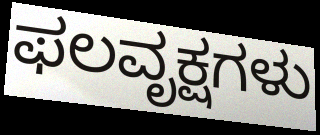
ಫಲವೃಕ್ಷಗಳು